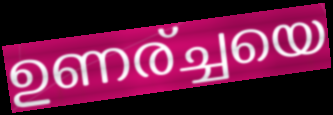
ഉണര്ച്ചയെ